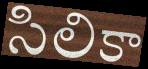
సిలికా